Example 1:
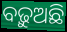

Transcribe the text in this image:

ବଢ଼ୁଅଛି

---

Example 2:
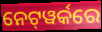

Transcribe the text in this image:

ନେଟ୍‍ୱର୍କରେ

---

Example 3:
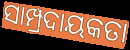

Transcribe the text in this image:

ସାମ୍ପ୍ରଦାୟକତା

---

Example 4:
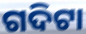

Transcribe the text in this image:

ଗଦିଟା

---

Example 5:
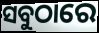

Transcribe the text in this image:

ସବୁଠାରେ